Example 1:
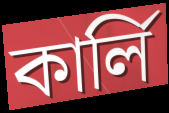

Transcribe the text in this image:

কার্লি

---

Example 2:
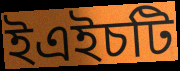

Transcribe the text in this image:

ইএইচটি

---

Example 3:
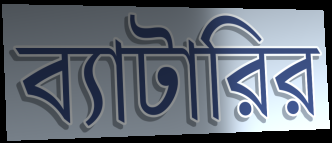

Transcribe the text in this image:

ব্যাটারির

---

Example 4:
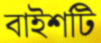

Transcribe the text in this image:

বাইশটি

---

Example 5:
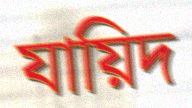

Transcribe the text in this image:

যায়িদ